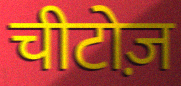
चीटोज़